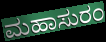
ಮಹಾಸುರಂ